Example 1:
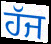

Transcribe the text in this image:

ਹੱਜ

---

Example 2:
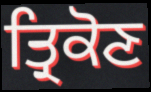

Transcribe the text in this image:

ਤ੍ਰਿਕੋਣ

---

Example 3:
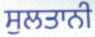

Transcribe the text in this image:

ਸੁਲਤਾਨੀ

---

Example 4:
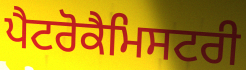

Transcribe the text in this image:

ਪੈਟਰੋਕੈਮਿਸਟਰੀ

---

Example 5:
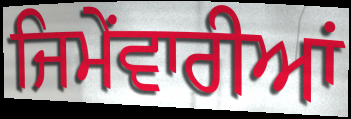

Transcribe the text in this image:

ਜਿਮੇਂਵਾਰੀਆਂ